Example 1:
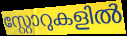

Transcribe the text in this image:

സ്റ്റോറുകളിൽ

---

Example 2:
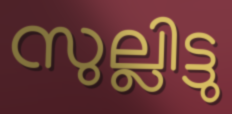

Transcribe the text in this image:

സുല്ലിട്ടു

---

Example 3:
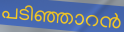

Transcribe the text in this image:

പടിഞ്ഞാറൻ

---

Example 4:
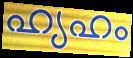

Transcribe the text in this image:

ഹ്യഹം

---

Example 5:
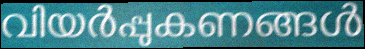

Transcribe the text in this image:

വിയർപ്പുകണങ്ങൾ